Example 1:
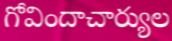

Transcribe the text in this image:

గోవిందాచార్యుల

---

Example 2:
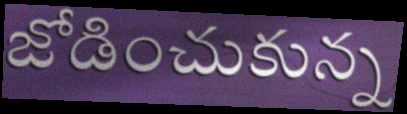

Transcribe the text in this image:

జోడించుకున్న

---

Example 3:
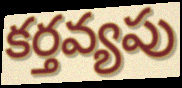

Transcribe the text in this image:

కర్తవ్యపు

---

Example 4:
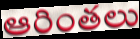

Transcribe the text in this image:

ఆరింతలు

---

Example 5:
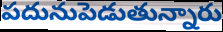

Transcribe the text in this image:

పదునుపెడుతున్నారు